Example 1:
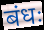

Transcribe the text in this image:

बंधः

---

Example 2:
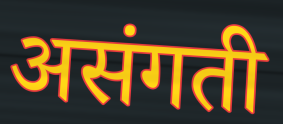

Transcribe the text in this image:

असंगती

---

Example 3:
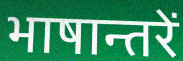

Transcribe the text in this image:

भाषान्तरें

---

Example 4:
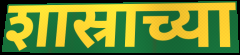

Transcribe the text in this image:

शास्राच्या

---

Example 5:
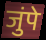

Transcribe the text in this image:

जुंपे